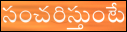
సంచరిస్తుంటే